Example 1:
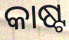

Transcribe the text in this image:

କାଷ୍ଟ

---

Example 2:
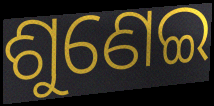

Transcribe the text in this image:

ଶୁଣେଇ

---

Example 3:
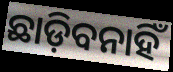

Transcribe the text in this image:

ଛାଡ଼ିବନାହିଁ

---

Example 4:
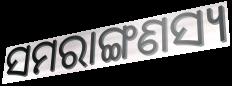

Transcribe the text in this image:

ସମରାଙ୍ଗଣସ୍ୟ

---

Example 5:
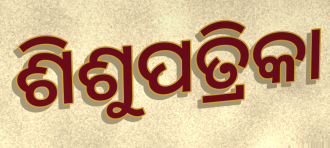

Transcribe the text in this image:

ଶିଶୁପତ୍ରିକା